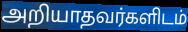
அறியாதவர்களிடம்